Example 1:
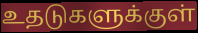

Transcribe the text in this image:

உதடுகளுக்குள்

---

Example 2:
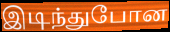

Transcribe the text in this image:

இடிந்துபோன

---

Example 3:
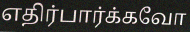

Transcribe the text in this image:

எதிர்பார்க்கவோ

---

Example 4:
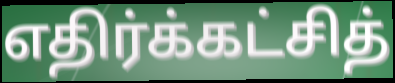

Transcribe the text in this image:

எதிர்க்கட்சித்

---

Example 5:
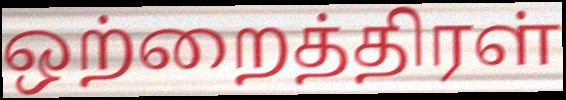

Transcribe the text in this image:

ஒற்றைத்திரள்